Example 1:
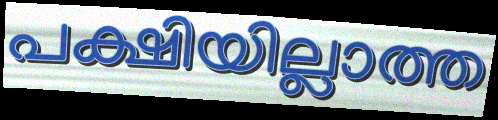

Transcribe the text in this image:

പക്ഷിയില്ലാത്ത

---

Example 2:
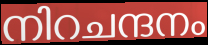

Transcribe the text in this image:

നിറചന്ദനം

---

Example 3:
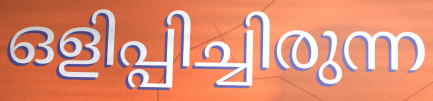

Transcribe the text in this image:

ഒളിപ്പിച്ചിരുന്ന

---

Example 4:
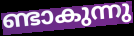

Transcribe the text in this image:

ണ്ടാകുന്നു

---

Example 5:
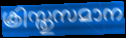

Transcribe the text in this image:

ക്രിസ്തുസമാന